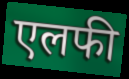
एलफी